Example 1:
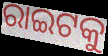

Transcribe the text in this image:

ରାଇଟକୁ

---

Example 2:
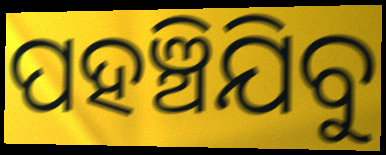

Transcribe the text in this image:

ପହଞ୍ଚିଯିବୁ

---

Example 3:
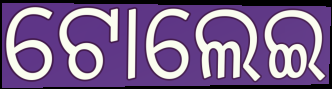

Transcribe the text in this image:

ଟୋଲେଇ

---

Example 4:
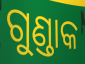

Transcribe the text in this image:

ଗୁଣ୍ଡାକ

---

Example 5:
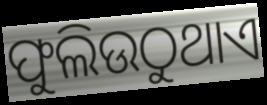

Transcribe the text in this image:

ଫୁଲିଉଠୁଥାଏ